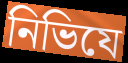
নিভিযে